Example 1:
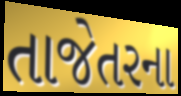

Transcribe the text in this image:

તાજેતરના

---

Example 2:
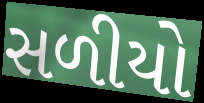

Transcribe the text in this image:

સળીયો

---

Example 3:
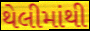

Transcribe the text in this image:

થેલીમાંથી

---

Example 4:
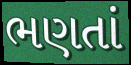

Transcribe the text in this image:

ભણતાં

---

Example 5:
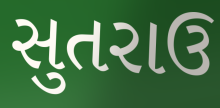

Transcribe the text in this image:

સુતરાઉ